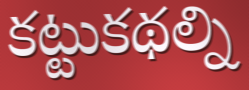
కట్టుకథల్ని